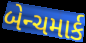
બેન્ચમાર્ક